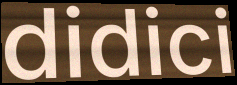
didici